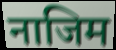
नाजिम